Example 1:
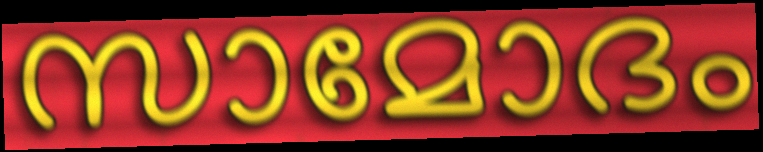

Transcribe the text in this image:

സാമോദം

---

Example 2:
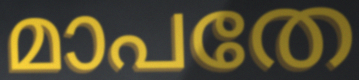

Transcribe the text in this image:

മാപതേ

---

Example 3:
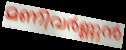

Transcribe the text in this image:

മണിവർണ്ണൻ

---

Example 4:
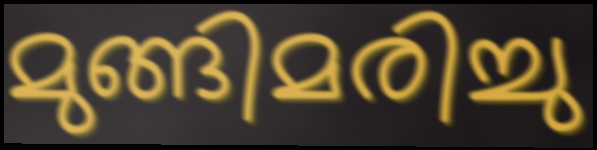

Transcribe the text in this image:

മുങ്ങിമരിച്ചു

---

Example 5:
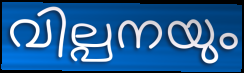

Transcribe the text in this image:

വില്പനയും